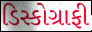
ડિસ્કોગ્રાફી